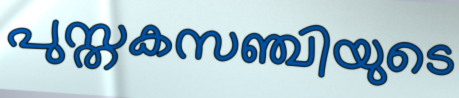
പുസ്തകസഞ്ചിയുടെ